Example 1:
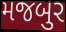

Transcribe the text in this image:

મજબુર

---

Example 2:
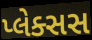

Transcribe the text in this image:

પ્લેક્સસ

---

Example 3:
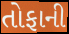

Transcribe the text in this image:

તોફાની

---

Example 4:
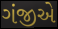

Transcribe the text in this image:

ગંજીએ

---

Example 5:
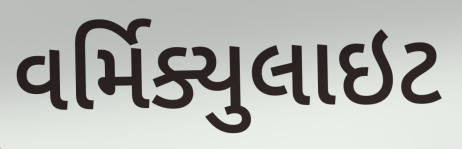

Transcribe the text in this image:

વર્મિક્યુલાઇટ